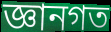
জ্ঞানগত